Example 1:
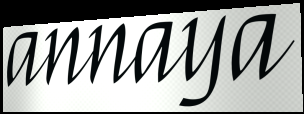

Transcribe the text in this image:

annaya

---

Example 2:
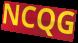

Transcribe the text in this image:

NCQG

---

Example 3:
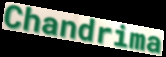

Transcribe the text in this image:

Chandrima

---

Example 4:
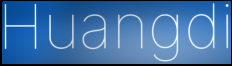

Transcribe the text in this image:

Huangdi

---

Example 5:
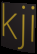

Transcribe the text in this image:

kji